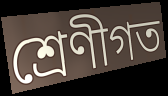
শ্ৰেণীগত